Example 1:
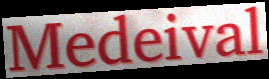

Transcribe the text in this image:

Medeival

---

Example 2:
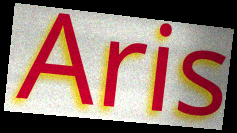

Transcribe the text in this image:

Aris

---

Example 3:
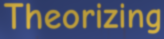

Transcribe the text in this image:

Theorizing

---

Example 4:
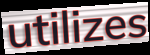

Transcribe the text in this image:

utilizes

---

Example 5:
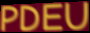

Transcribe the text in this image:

PDEU